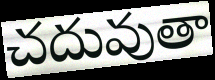
చదువుతా